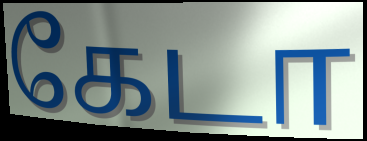
கேடா